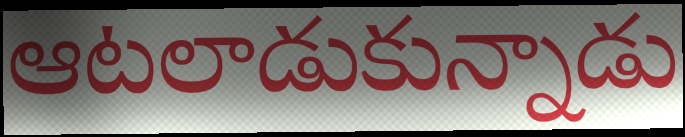
ఆటలాడుకున్నాడు